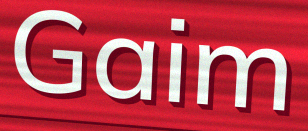
Gaim